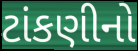
ટાંકણીનો